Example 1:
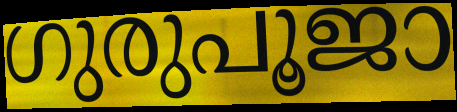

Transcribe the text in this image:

ഗുരുപൂജാ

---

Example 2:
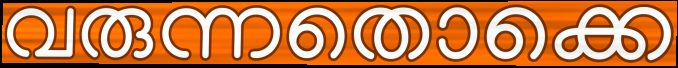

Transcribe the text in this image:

വരുന്നതൊക്കെ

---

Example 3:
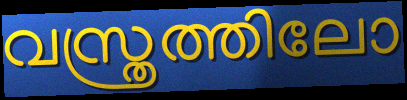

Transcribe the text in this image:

വസ്ത്രത്തിലോ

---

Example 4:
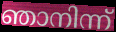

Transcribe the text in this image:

ഞാനിന്ന്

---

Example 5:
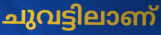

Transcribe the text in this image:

ചുവട്ടിലാണ്